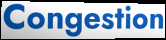
Congestion